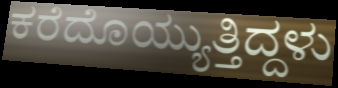
ಕರೆದೊಯ್ಯುತ್ತಿದ್ದಳು